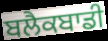
ਬਲੈਕਬਾਡੀ